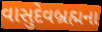
વાસુદેવબ્રહ્મના